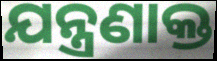
ଯନ୍ତ୍ରଣାକ୍ତ